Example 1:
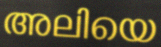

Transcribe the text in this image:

അലിയെ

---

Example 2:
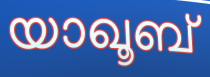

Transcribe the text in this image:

യാഖൂബ്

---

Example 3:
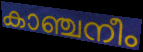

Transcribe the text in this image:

കാഞ്ചനീം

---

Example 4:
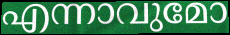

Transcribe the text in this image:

എന്നാവുമോ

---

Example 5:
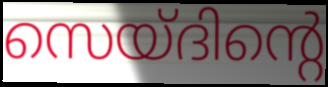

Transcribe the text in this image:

സെയ്ദിന്റെ